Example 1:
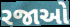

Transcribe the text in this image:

રજાઓ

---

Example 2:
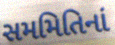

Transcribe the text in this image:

સમમિતિનાં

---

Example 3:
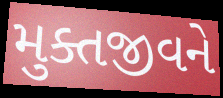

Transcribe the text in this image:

મુક્તજીવને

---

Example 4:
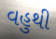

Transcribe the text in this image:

વહુથી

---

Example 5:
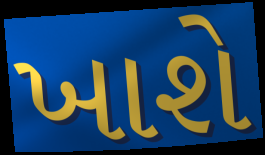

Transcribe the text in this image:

ખાશે